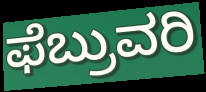
ಫೆಬ್ರುವರಿ